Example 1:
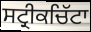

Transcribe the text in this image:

ਸਟ੍ਰੀਕਚਿੱਟਾ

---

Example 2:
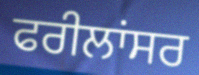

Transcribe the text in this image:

ਫਰੀਲਾਂਸਰ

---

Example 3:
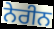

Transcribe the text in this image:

ਨੇਰੀਨ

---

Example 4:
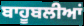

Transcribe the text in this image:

ਬਾਹੂਬਲੀਆਂ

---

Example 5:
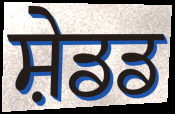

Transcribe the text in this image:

ਸ਼ੇਡਡ